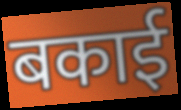
बकाई